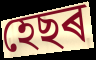
হেছৰ